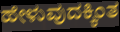
ಹೇಳುವುದಕ್ಕಿಂತ